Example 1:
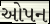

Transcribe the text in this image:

ઓપન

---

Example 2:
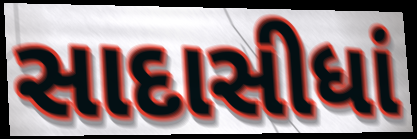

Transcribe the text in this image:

સાદાસીધાં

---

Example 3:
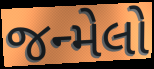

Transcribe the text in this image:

જન્મેલો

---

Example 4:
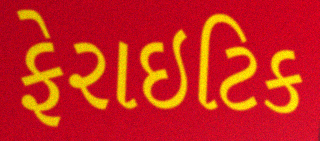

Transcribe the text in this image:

ફેરાઇટિક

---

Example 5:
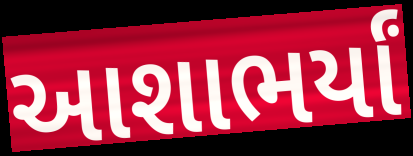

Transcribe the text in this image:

આશાભર્યાં